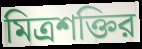
মিত্রশক্তির